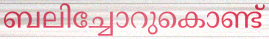
ബലിച്ചോറുകൊണ്ട്